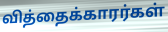
வித்தைக்காரர்கள்